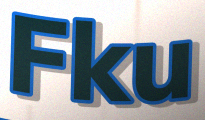
Fku